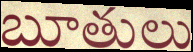
బూతులు